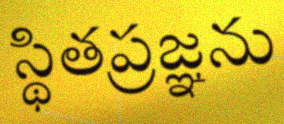
స్థితప్రజ్ఞను